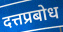
दत्तप्रबोध